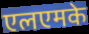
एलएमके